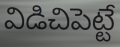
విడిచిపెట్టే